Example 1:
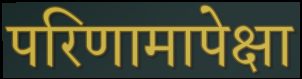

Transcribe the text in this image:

परिणामापेक्षा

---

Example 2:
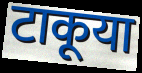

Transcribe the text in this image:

टाकूया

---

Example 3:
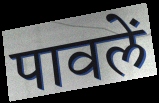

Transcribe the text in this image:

पावलें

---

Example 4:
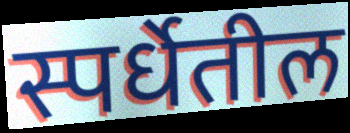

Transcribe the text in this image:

स्पर्धेतील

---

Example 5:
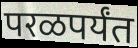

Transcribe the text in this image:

परळपर्यंत